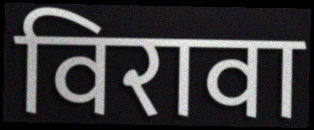
विरावा